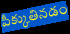
పీక్కుతినడం